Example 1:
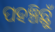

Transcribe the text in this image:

ପହଞ୍ଚିଛୁଁ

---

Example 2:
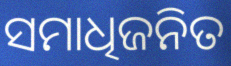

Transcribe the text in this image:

ସମାଧିଜନିତ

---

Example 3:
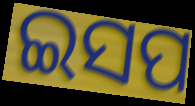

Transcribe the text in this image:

ଇସପ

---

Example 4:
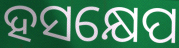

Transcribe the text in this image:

ହସକ୍ଷେପ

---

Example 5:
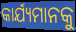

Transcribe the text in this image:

କାର୍ଯ୍ୟମାନକୁ